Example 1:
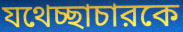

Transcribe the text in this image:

যথেচ্ছাচারকে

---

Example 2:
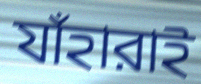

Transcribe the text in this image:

যাঁহারাই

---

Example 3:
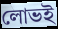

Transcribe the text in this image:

লোভই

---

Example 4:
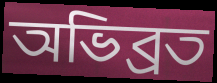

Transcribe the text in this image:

অভিব্রত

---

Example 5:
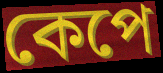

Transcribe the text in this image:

কেপে